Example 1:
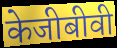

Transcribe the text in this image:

केजीबीवी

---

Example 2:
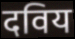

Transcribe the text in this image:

दविय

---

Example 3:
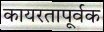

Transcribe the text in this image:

कायरतापूर्वक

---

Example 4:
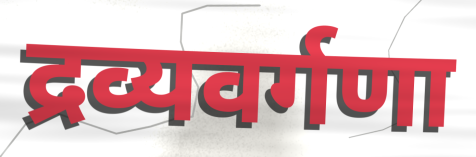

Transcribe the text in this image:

द्रव्यवर्गणा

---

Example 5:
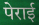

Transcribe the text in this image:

पेराई